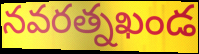
నవరత్నఖండ